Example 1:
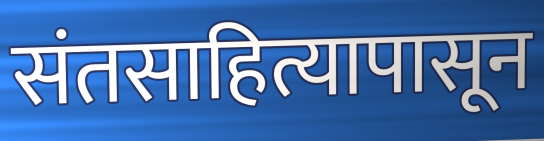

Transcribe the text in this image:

संतसाहित्यापासून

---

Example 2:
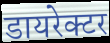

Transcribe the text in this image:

डायरेक्टर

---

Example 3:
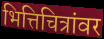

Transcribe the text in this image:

भित्तिचित्रांवर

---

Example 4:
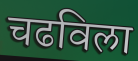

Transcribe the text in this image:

चढविला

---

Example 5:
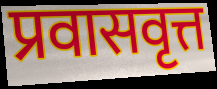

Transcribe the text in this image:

प्रवासवृत्त